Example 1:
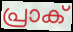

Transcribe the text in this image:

പ്രാക്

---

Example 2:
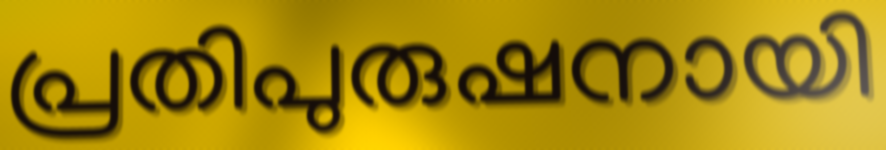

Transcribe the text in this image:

പ്രതിപുരുഷനായി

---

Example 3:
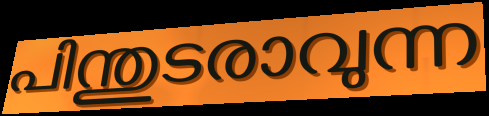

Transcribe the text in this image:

പിന്തുടരാവുന്ന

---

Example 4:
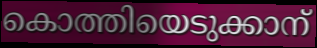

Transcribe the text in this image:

കൊത്തിയെടുക്കാന്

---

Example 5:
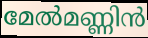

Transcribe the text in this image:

മേൽമണ്ണിൻ